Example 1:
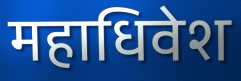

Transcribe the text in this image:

महाधिवेश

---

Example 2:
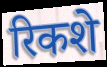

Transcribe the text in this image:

रिकशे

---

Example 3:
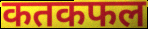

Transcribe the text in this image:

कतकफल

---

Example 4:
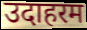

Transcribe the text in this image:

उदाहरम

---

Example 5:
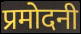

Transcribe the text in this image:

प्रमोदनी